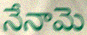
నేనామె